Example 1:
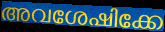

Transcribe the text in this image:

അവശേഷിക്കേ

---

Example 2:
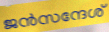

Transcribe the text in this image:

ജൻസന്ദേശ്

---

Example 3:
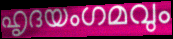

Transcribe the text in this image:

ഹൃദയംഗമവും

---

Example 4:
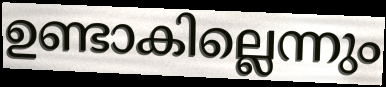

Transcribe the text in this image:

ഉണ്ടാകില്ലെന്നും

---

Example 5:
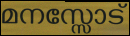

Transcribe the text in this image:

മനസ്സോട്